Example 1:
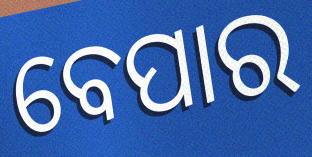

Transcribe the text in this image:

ବେପାର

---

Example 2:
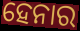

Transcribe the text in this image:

ହେନାର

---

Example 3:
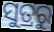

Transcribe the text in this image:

ସୁତ୍ରରୁ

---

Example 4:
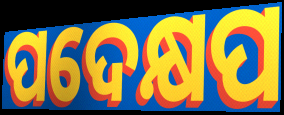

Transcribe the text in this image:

ପଦେକ୍ଷପ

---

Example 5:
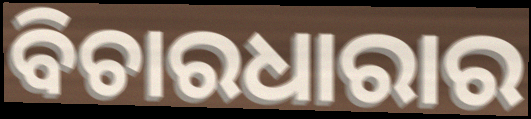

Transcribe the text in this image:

ବିଚାରଧାରାର